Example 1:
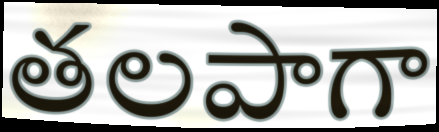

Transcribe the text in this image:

తలపాగా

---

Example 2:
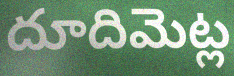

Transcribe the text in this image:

దూదిమెట్ల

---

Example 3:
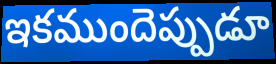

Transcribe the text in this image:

ఇకముందెప్పుడూ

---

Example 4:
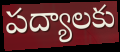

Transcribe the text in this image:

పద్యాలకు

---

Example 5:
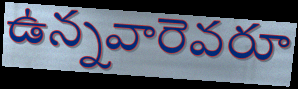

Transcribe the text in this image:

ఉన్నవారెవరూ